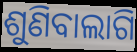
ଶୁଣିବାଲାଗି